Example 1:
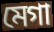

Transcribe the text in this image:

মেগা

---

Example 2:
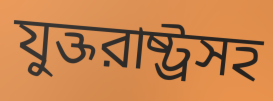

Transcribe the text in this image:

যুক্তরাষ্ট্রসহ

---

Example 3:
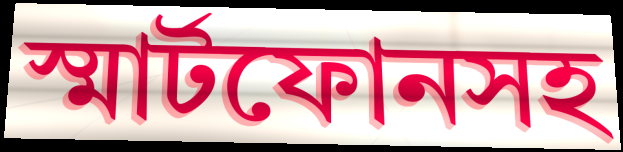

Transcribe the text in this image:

স্মার্টফোনসহ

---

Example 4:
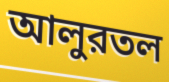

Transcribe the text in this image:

আলুরতল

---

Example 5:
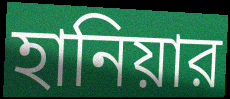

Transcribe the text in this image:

হানিয়ার